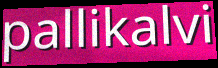
pallikalvi